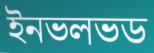
ইনভলভড